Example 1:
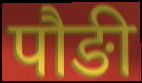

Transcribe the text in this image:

पौङी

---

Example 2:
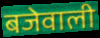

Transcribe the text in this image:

बजेवाली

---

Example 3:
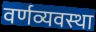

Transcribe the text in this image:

वर्णव्यवस्था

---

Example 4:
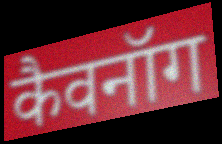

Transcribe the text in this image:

कैवनॉग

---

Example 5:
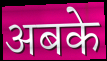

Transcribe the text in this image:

अबके